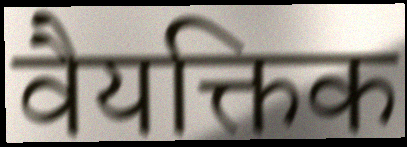
वैयक्तिक